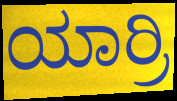
ಯಾರ್ರಿ